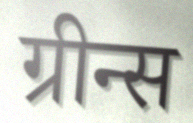
ग्रीन्स